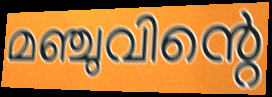
മഞ്ചുവിന്റെ